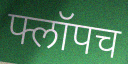
फ्लॉपच